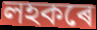
লহকৰে